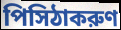
পিসিঠাকরুণ